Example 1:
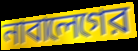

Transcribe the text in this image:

নাবালেগের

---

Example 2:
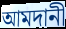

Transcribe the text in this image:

আমদানী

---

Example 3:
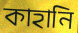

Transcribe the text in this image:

কাহানি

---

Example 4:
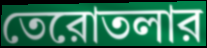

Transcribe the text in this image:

তেরোতলার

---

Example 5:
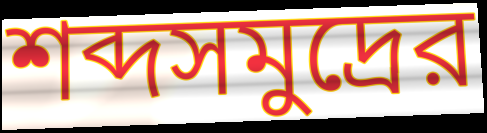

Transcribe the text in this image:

শব্দসমুদ্রের